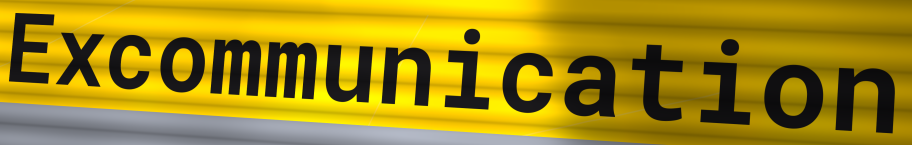
Excommunication